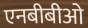
एनबीबीओ